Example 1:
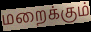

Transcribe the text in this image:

மறைக்கும்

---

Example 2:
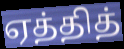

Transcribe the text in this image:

ஏத்தித்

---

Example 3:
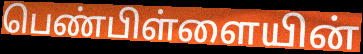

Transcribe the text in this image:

பெண்பிள்ளையின்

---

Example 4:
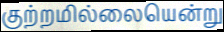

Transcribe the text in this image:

குற்றமில்லையென்று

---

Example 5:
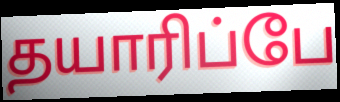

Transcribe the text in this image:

தயாரிப்பே